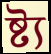
ষ্ট্য